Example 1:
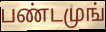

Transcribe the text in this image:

பண்டமுங்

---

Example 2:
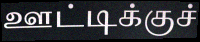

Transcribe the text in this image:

ஊட்டிக்குச்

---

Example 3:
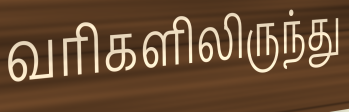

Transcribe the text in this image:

வரிகளிலிருந்து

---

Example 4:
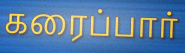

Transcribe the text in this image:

கரைப்பார்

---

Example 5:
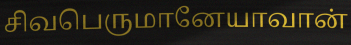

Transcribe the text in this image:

சிவபெருமானேயாவான்